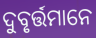
ଦୁବୃର୍ତ୍ତମାନେ